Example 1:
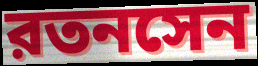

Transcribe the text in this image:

রতনসেন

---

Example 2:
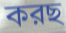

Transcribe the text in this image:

করছ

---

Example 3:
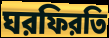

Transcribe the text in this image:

ঘরফিরতি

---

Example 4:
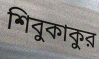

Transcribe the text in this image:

শিবুকাকুর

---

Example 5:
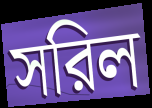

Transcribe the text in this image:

সরিল